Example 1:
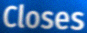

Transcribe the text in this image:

Closes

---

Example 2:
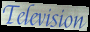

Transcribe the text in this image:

Television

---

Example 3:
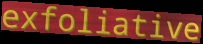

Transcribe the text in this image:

exfoliative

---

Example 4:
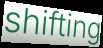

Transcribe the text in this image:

shifting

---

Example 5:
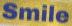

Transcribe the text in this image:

Smile